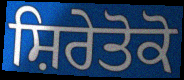
ਸ਼ਿਰੇਤੋਕੋ